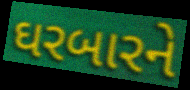
ઘરબારને